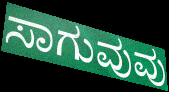
ಸಾಗುವುವು